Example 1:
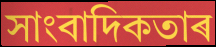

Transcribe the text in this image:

সাংবাদিকতাৰ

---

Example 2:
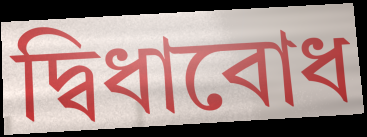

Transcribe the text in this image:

দ্বিধাবোধ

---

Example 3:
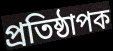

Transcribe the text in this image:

প্ৰতিষ্ঠাপক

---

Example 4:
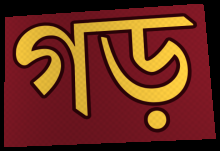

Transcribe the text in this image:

গড়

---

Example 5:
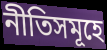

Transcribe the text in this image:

নীতিসমূহে